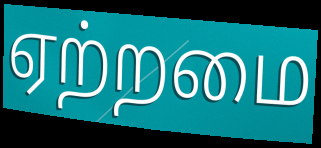
ஏற்றமை